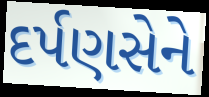
દર્પણસેને